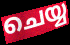
ചെയ്യ